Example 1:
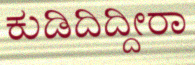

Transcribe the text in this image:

ಕುಡಿದಿದ್ದೀರಾ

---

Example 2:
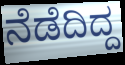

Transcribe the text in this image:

ನೆಡೆದಿದ್ದ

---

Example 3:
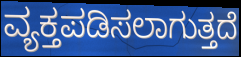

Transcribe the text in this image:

ವ್ಯಕ್ತಪಡಿಸಲಾಗುತ್ತದೆ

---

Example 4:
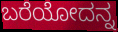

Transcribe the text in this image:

ಬರೆಯೋದನ್ನ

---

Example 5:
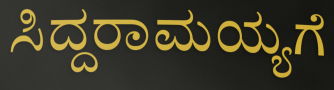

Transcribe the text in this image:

ಸಿದ್ದರಾಮಯ್ಯಗೆ